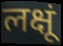
लक्षूं